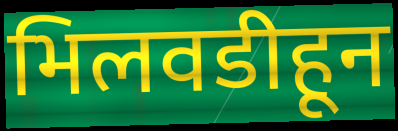
भिलवडीहून